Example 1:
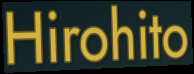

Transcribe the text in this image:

Hirohito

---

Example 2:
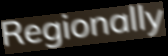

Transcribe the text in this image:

Regionally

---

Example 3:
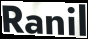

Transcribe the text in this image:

Ranil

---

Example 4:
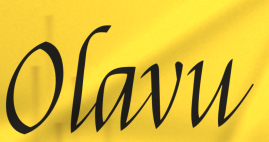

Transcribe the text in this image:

Olavu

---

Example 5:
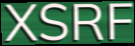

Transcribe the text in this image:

XSRF